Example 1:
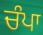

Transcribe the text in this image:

ਚੰਪਾ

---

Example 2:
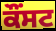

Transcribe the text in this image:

ਕੌਂਸਟ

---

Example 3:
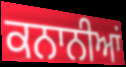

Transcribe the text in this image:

ਕਨਾਨੀਆਂ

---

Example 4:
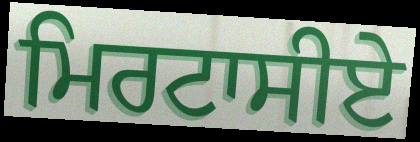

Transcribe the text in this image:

ਮਿਰਟਾਸੀਏ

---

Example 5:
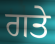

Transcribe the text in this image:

ਗਤੇ